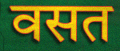
वसत